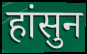
हांसुन